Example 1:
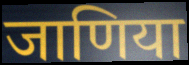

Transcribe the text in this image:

जाणिया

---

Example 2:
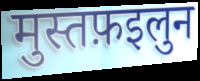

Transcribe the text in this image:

मुस्तफ़इलुन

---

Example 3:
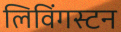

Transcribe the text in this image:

लिविंगस्टन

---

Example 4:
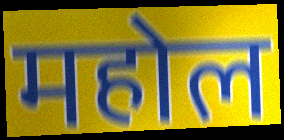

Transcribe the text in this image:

महोल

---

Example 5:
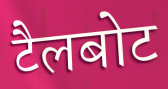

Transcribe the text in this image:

टैलबोट